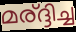
മര്ദ്ദിച്ച